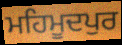
ਮਹਿਮੂਦਪੁਰ